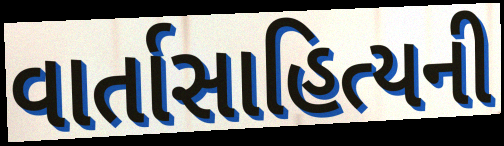
વાર્તાસાહિત્યની